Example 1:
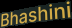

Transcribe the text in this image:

Bhashini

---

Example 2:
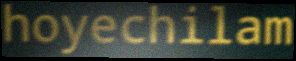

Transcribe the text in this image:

hoyechilam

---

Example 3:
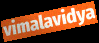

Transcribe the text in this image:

vimalavidya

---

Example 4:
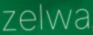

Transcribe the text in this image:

zelwa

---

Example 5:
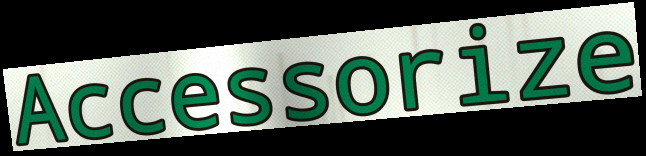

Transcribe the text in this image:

Accessorize